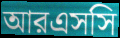
আরএসসি